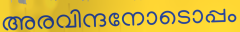
അരവിന്ദനോടൊപ്പം